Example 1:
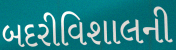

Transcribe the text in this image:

બદરીવિશાલની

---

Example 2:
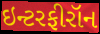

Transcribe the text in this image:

ઇન્ટરફીરૉન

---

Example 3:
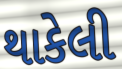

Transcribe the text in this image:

થાકેલી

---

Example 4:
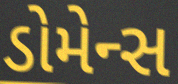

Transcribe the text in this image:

ડોમેન્સ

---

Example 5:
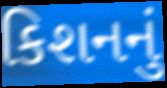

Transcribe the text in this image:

કિશનનું